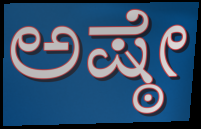
ಅಷ್ಠೇ